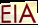
EIA